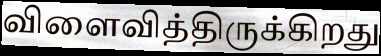
விளைவித்திருக்கிறது